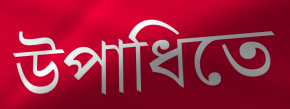
উপাধিতে